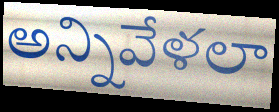
అన్నివేళలా